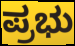
ಪ್ರಭು